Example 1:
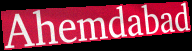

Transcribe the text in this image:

Ahemdabad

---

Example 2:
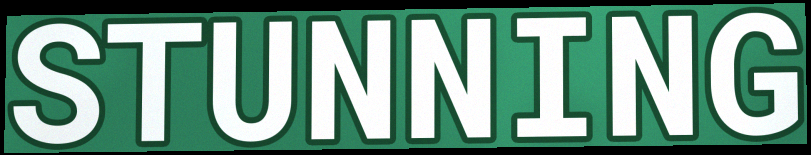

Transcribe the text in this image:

STUNNING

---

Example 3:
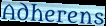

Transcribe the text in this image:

Adherens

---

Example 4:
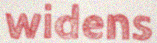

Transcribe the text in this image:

widens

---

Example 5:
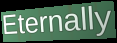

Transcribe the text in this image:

Eternally